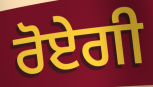
ਰੋਏਗੀ